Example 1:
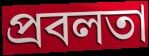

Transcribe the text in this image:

প্রবলতা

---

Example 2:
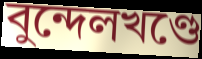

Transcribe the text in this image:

বুন্দেলখণ্ডে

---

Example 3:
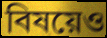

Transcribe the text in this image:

বিষয়েও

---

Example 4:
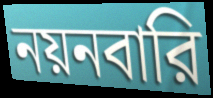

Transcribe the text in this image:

নয়নবারি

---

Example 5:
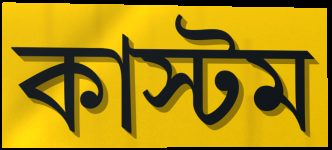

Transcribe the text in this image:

কাস্টম